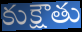
కుక్షౌతు